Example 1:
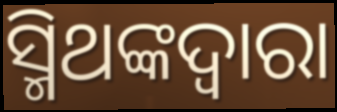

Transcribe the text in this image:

ସ୍ମିଥଙ୍କଦ୍ୱାରା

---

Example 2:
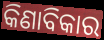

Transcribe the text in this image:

କିଣାବିକାର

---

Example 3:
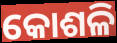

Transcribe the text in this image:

କୋଶଳି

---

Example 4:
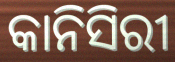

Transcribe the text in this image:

କାନିସିରୀ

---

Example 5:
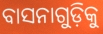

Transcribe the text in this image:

ବାସନାଗୁଡ଼ିକୁ